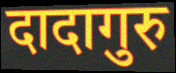
दादागुरु